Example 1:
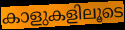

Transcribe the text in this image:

കാളുകളിലൂടെ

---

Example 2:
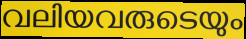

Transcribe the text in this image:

വലിയവരുടെയും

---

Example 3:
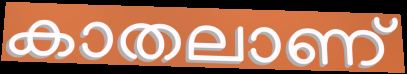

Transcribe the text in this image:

കാതലാണ്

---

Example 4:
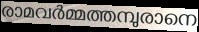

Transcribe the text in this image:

രാമവർമ്മത്തമ്പുരാനെ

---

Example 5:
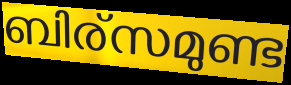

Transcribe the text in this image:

ബിര്സമുണ്ട